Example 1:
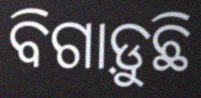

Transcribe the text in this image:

ବିଗାଡ଼ୁଛି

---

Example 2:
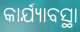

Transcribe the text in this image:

କାର୍ଯ୍ୟାବସ୍ଥା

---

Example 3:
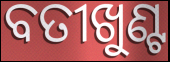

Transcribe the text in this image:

ବତୀଖୁଣ୍ଟ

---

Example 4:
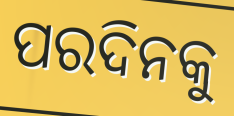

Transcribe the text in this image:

ପରଦିନକୁ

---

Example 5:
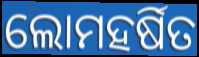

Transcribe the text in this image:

ଲୋମହର୍ଷିତ